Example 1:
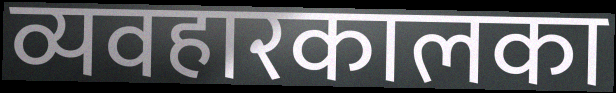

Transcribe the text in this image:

व्यवहारकालका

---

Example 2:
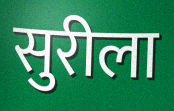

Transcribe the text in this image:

सुरीला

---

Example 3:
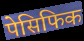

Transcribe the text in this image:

पेसिफिक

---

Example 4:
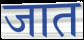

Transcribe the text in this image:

जात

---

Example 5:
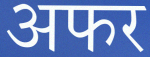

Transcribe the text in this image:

अफर